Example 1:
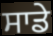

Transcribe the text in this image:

ਸਾਡੇ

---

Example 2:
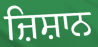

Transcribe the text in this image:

ਜ਼ਿਸ਼ਾਨ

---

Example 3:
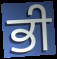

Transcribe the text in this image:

ਭੀ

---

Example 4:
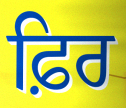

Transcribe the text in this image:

ਫ਼ਿਰ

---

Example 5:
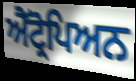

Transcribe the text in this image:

ਐਂਟ੍ਰੋਪਿਅਨ